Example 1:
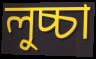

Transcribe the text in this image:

লুচ্চা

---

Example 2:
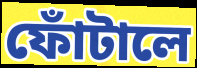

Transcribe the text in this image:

ফোঁটালে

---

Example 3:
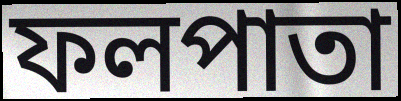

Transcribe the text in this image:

ফলপাতা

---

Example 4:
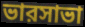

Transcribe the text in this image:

ভারসাভা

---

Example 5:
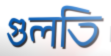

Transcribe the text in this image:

গুলতি